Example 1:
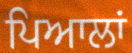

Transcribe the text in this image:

ਪਿਆਲਾਂ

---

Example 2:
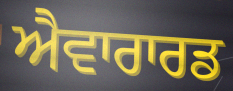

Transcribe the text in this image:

ਐਵਾਰਾਰਡ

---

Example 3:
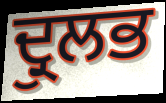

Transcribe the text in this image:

ਦ੍ਰੁਲਭ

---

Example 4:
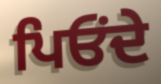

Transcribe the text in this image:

ਪਿਓਂਦੇ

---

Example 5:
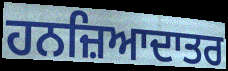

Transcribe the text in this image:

ਹਨਜ਼ਿਆਦਾਤਰ